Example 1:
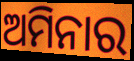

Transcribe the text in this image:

ଅମିନାର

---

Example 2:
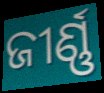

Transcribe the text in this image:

ଜୀର୍ଣ୍ଣ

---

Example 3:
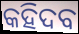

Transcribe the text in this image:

କହିଦବ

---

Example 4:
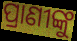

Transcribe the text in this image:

ପ୍ରାଣୀଙ୍କୁ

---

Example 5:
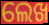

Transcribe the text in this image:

ଲେଖ